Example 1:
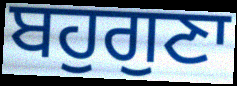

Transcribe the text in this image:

ਬਹੁਗੁਣਾ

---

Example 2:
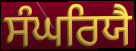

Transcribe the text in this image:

ਸੰਘਰਿਯੈ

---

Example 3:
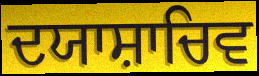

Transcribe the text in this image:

ਦਯਾਸ਼ਾਚਿਵ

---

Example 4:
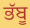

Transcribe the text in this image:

ਭੱਬੂ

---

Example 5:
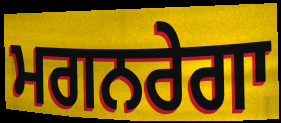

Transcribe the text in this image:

ਮਗਨਰੇਗਾ